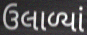
ઉલાળ્યાં